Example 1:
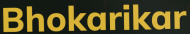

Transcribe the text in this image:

Bhokarikar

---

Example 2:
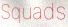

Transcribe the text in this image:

Squads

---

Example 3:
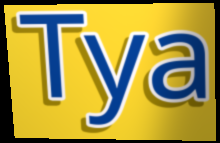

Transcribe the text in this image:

Tya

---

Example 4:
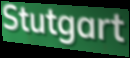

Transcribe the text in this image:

Stutgart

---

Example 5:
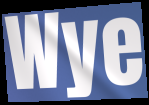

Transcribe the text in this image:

Wye